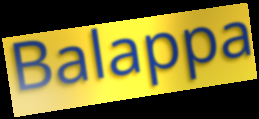
Balappa